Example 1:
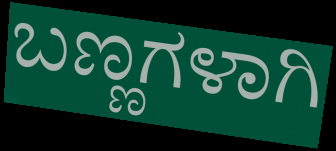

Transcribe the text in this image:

ಬಣ್ಣಗಳಾಗಿ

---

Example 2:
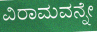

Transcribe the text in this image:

ವಿರಾಮವನ್ನೇ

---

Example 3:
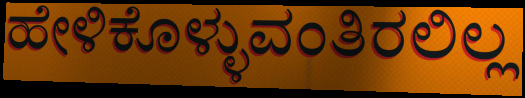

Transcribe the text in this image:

ಹೇಳಿಕೊಳ್ಳುವಂತಿರಲಿಲ್ಲ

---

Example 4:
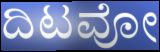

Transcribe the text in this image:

ದಿಟವೋ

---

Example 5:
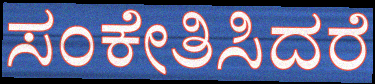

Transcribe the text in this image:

ಸಂಕೇತಿಸಿದರೆ